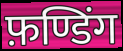
फ़ण्डिंग